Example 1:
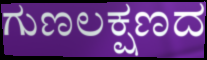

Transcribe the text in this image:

ಗುಣಲಕ್ಷಣದ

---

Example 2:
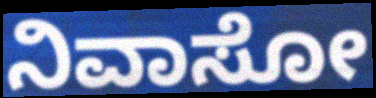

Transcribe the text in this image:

ನಿವಾಸೋ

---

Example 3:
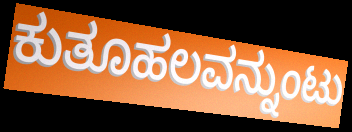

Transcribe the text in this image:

ಕುತೂಹಲವನ್ನುಂಟು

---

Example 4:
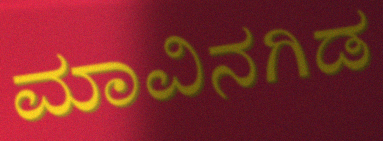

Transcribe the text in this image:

ಮಾವಿನಗಿಡ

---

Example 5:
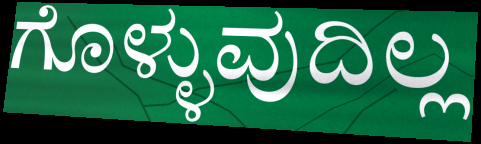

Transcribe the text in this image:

ಗೊಳ್ಳುವುದಿಲ್ಲ